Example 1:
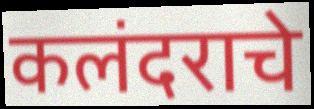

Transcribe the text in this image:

कलंदराचे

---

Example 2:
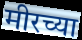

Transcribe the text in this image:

मीरच्या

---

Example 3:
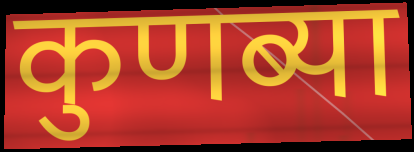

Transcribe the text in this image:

कुणब्या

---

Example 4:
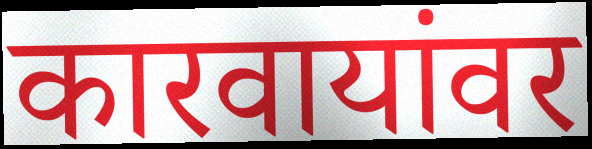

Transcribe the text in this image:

कारवायांवर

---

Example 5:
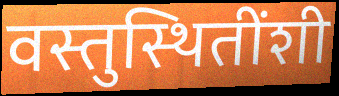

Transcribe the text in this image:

वस्तुस्थितींशी